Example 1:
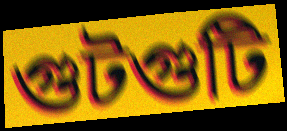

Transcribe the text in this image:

গুটগুটি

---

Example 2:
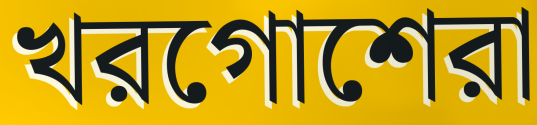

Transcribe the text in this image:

খরগোশেরা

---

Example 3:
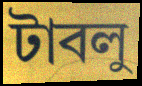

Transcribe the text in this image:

টাবলু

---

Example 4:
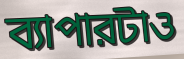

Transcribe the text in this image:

ব্যাপারটাও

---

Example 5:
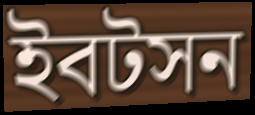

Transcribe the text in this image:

ইবটসন